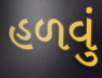
હળવું